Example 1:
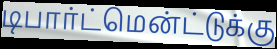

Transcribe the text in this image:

டிபார்ட்மென்ட்டுக்கு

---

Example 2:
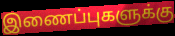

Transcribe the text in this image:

இணைப்புகளுக்கு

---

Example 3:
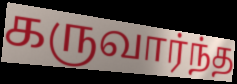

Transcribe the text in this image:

கருவார்ந்த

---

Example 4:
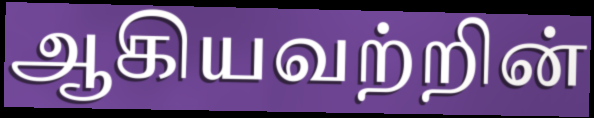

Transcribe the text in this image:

ஆகியவற்றின்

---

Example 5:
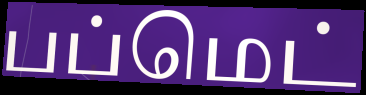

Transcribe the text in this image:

பப்மெட்